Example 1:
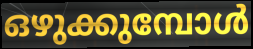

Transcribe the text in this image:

ഒഴുക്കുമ്പോൾ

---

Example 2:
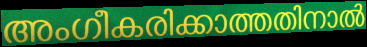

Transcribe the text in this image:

അംഗീകരിക്കാത്തതിനാൽ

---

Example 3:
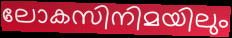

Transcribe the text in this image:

ലോകസിനിമയിലും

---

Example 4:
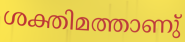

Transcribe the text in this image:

ശക്തിമത്താണു്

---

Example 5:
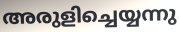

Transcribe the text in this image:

അരുളിച്ചെയ്യന്നു